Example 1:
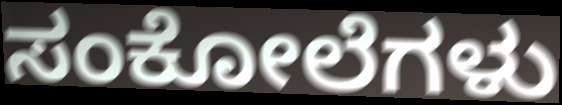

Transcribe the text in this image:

ಸಂಕೋಲೆಗಳು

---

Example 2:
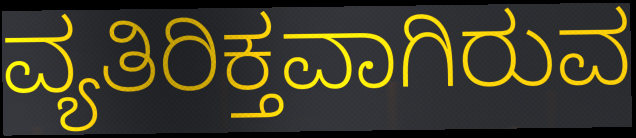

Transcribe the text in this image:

ವ್ಯತಿರಿಕ್ತವಾಗಿರುವ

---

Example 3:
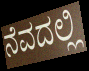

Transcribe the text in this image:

ನೆವದಲ್ಲಿ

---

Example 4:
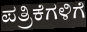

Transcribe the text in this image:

ಪತ್ರಿಕೆಗಳಿಗೆ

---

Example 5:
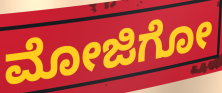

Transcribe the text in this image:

ಮೋಜಿಗೋ